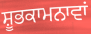
ਸ਼ੂਭਕਾਮਨਾਵਾਂ